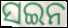
ସଇନ